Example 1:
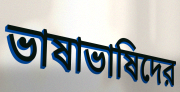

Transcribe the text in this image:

ভাষাভাষিদের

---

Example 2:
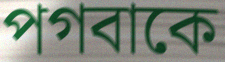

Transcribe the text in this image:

পগবাকে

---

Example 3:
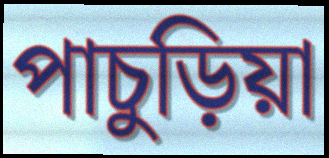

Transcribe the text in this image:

পাচুড়িয়া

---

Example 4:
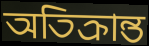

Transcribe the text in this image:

অতিক্রান্ত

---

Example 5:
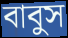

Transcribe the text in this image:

বাবুস